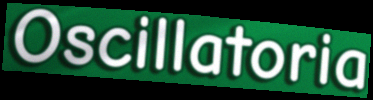
Oscillatoria